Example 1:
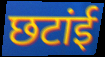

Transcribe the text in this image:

छटांई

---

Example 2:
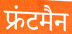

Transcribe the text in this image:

फ्रंटमैन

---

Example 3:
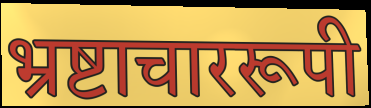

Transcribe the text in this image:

भ्रष्टाचाररूपी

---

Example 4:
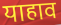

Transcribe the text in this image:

याहाव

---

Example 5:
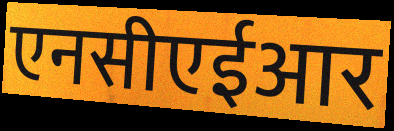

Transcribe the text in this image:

एनसीएईआर